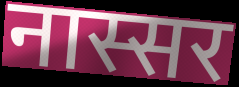
नास्सर